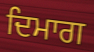
ਦਿਮਾਗ